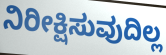
ನಿರೀಕ್ಷಿಸುವುದಿಲ್ಲ